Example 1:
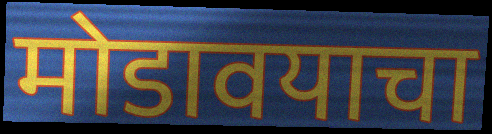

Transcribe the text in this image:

मोडावयाचा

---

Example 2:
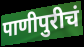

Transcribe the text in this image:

पाणीपुरीचं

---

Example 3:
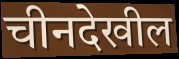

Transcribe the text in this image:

चीनदेखील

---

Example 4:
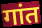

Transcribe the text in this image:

गांत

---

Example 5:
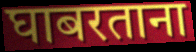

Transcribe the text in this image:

घाबरताना